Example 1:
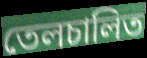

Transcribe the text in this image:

তেলচালিত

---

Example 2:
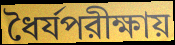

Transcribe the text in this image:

ধৈর্যপরীক্ষায়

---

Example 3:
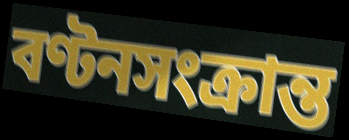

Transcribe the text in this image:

বণ্টনসংক্রান্ত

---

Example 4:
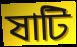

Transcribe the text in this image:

ষাটি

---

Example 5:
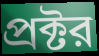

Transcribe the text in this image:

প্রক্টর